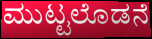
ಮುಟ್ಟಲೊಡನೆ